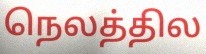
நெலத்தில